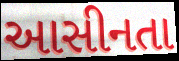
આસીનતા